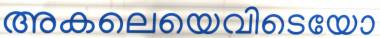
അകലെയെവിടെയോ